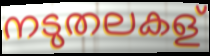
നടുതലകള്